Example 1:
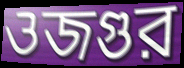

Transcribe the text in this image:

ওজগুর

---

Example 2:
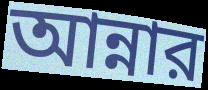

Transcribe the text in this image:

আন্নার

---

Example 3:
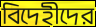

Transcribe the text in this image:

বিদেহীদের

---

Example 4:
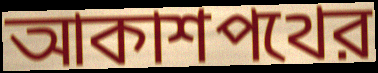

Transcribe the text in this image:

আকাশপথের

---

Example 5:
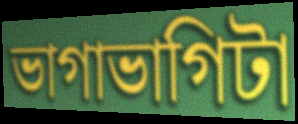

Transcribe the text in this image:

ভাগাভাগিটা